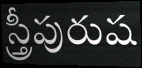
స్త్రీపురుష